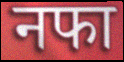
नफा